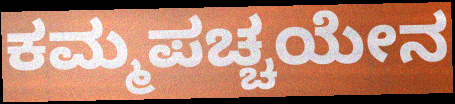
ಕಮ್ಮಪಚ್ಚಯೇನ